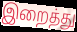
இறைத்து